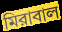
মিরাবাল